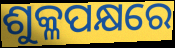
ଶୁକ୍ଳପକ୍ଷରେ